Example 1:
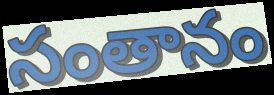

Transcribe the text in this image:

సంతానం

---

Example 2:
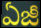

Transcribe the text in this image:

ఏజీ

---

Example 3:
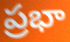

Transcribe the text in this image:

ప్రభా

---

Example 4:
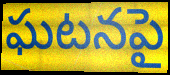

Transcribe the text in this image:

ఘటనపై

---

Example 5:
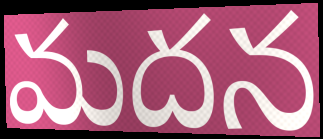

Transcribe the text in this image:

మదన